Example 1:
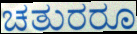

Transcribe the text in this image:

ಚತುರರೂ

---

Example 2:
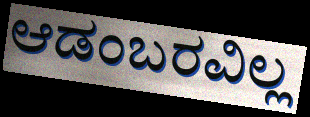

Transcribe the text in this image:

ಆಡಂಬರವಿಲ್ಲ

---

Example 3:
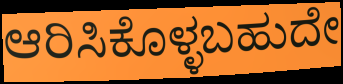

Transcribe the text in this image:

ಆರಿಸಿಕೊಳ್ಳಬಹುದೇ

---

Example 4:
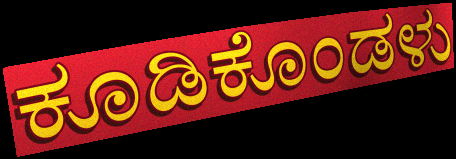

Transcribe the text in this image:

ಕೂಡಿಕೊಂಡಳು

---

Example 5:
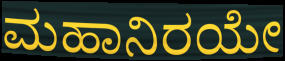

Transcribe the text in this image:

ಮಹಾನಿರಯೇ